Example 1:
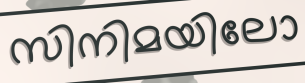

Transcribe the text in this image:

സിനിമയിലോ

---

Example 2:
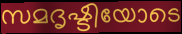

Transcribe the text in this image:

സമദൃഷ്ടിയോടെ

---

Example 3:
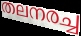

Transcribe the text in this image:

തലനരച്ച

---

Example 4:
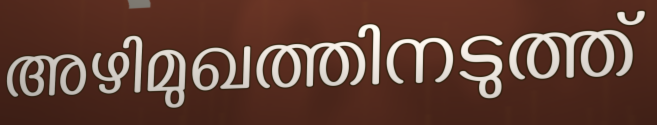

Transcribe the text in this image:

അഴിമുഖത്തിനടുത്ത്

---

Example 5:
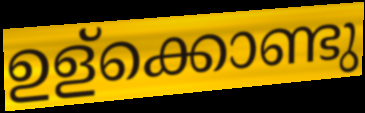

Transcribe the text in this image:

ഉള്ക്കൊണ്ടു